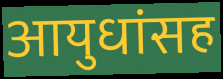
आयुधांसह